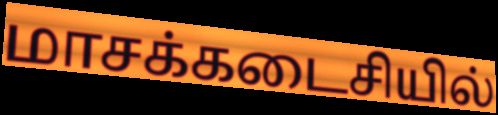
மாசக்கடைசியில்